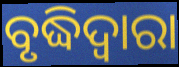
ବୃଦ୍ଧିଦ୍ୱାରା